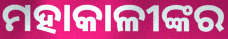
ମହାକାଳୀଙ୍କର